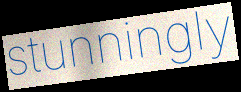
stunningly